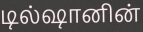
டில்ஷானின்